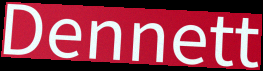
Dennett